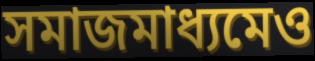
সমাজমাধ্যমেও